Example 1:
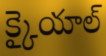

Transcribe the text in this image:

క్కైయాల్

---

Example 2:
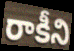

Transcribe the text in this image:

రాకీని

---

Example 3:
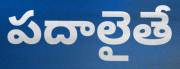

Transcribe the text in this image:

పదాలైతే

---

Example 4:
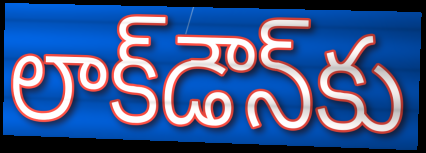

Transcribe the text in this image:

లాక్‌డౌన్‌కు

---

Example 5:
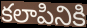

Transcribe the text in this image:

కలాపినికి